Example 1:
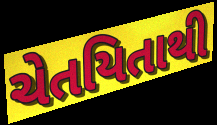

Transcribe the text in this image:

ચેતયિતાથી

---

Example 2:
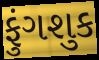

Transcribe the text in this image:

ફુંગશુક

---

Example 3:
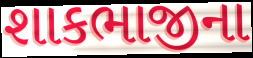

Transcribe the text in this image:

શાકભાજીના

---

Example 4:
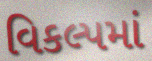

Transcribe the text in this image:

વિકલ્પમાં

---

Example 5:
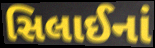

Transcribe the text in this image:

સિલાઈનાં